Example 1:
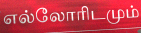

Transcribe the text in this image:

எல்லோரிடமும்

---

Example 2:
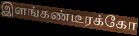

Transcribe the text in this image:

இளங்கண்டீரக்கோ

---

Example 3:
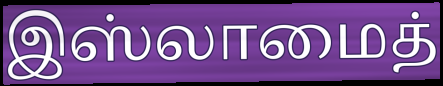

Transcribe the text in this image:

இஸ்லாமைத்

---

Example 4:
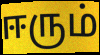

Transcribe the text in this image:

ஈரும்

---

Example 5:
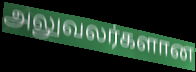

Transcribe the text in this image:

அலுவலர்களான